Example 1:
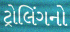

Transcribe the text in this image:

ટ્રોલિંગનો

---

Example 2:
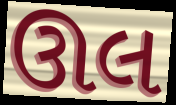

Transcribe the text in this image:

ઊલ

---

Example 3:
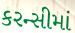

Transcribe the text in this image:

કરન્સીમાં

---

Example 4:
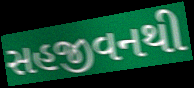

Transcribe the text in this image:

સહજીવનથી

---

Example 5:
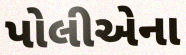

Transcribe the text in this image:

પોલીએના